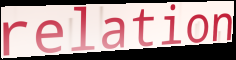
relation